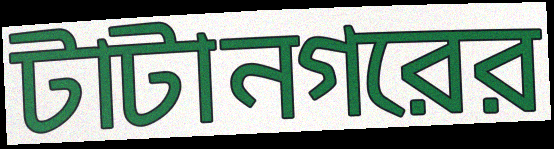
টাটানগরের